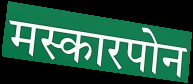
मस्कारपोन